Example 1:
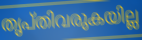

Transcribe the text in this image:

തൃപ്തിവരുകയില്ല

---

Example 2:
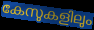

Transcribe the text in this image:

കേസുകളിലും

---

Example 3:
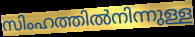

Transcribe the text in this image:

സിംഹത്തിൽനിന്നുള്ള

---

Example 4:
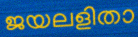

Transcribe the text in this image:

ജയലളിതാ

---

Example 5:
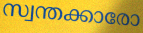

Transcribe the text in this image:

സ്വന്തക്കാരോ